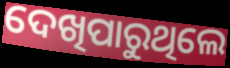
ଦେଖିପାରୁଥିଲେ